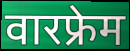
वारफ्रेम